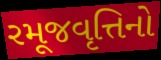
રમૂજવૃત્તિનો